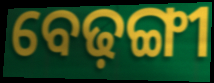
ବେଢ଼ଙ୍ଗୀ